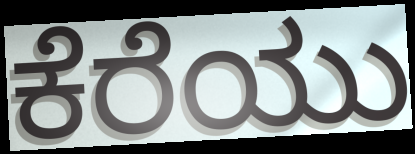
ಕೆರೆಯು